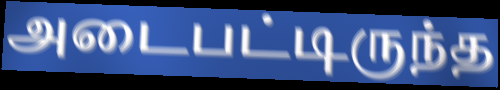
அடைபட்டிருந்த